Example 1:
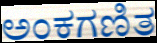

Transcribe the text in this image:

ಅಂಕಗಣಿತ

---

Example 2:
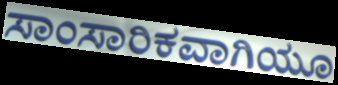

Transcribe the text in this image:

ಸಾಂಸಾರಿಕವಾಗಿಯೂ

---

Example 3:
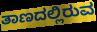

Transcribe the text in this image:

ತಾಣದಲ್ಲಿರುವ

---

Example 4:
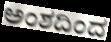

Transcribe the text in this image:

ಅಂಶದಿಂದ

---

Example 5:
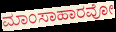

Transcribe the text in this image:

ಮಾಂಸಾಹಾರವೋ